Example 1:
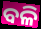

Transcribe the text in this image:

ବଳି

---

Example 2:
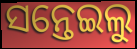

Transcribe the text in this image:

ସନ୍ତେଇଲୁ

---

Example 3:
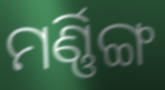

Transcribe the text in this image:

ମର୍ଣ୍ଣିଙ୍ଗ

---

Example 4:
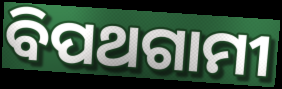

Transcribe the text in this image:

ବିପଥଗାମୀ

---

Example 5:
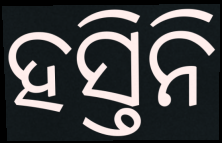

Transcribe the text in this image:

ହସ୍ତିନି